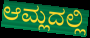
ಆಮ್ಲದಲ್ಲಿ